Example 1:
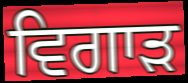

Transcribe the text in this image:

ਵਿਗਾਡ਼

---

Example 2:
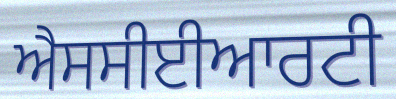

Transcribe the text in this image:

ਐਸਸੀਈਆਰਟੀ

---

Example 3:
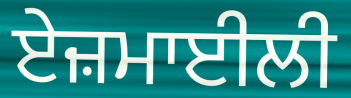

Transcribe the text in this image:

ਏਜ਼ਮਾਈਲੀ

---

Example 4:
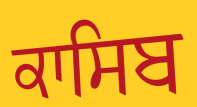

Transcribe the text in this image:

ਕਾਸਿਬ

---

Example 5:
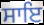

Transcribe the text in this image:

ਸਾਇ